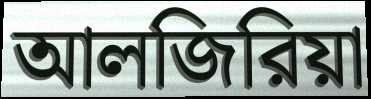
আলজিরিয়া